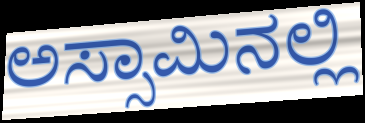
ಅಸ್ಸಾಮಿನಲ್ಲಿ